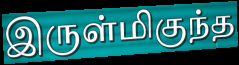
இருள்மிகுந்த